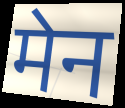
मेन